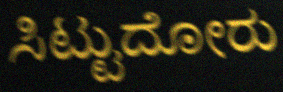
ಸಿಟ್ಟುದೋರು